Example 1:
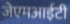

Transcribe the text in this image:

जेएमआईटी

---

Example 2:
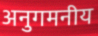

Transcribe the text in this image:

अनुगमनीय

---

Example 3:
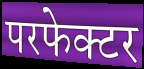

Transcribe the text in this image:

परफेक्टर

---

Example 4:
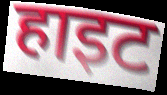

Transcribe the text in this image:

हाइट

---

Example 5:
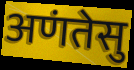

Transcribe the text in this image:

अणंतेसु